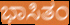
ಭಾಸಿತಂ